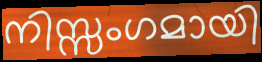
നിസ്സംഗമായി